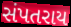
સંપતરાય